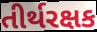
તીર્થરક્ષક